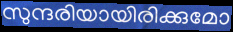
സുന്ദരിയായിരിക്കുമോ